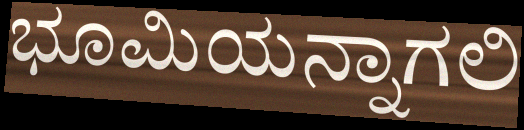
ಭೂಮಿಯನ್ನಾಗಲಿ